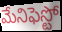
మేనిఫెస్టో